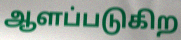
ஆளப்படுகிற